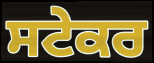
ਸਟੇਕਰ